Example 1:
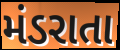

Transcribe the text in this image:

મંડરાતા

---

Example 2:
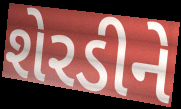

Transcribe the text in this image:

શેરડીને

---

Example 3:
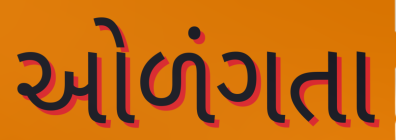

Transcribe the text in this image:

ઓળંગતા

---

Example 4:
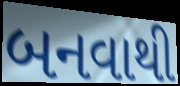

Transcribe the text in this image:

બનવાથી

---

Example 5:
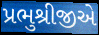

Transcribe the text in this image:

પ્રભુશ્રીજીએ